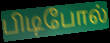
பிடிபோல்